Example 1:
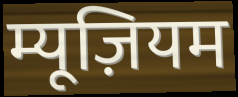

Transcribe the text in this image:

म्यूज़ियम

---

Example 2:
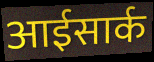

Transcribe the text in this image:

आईसार्क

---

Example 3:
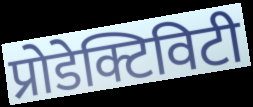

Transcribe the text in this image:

प्रोडेक्टिविटी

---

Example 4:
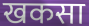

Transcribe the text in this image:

खकसा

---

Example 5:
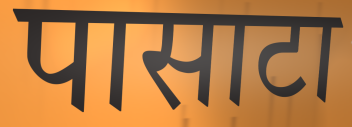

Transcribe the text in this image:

पासाटा